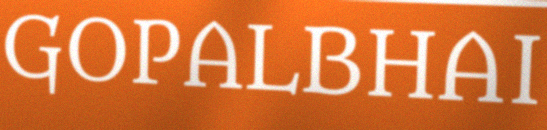
GOPALBHAI